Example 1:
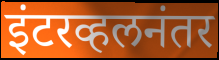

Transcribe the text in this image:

इंटरव्हलनंतर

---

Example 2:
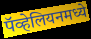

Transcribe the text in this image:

पॅव्हेलियनमध्ये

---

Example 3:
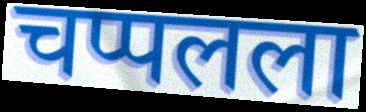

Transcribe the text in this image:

चप्पलला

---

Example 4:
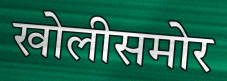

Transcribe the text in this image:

खोलीसमोर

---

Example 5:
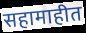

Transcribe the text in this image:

सहामाहीत